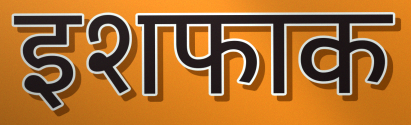
इशफाक